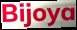
Bijoya